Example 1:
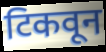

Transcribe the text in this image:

टिकवून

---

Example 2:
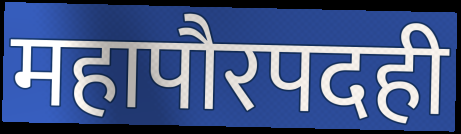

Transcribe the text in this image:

महापौरपदही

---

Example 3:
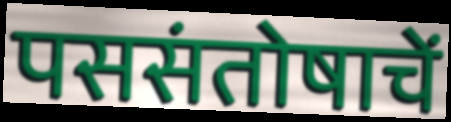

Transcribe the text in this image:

पससंतोषाचें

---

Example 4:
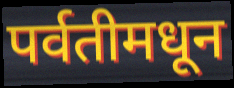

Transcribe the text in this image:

पर्वतीमधून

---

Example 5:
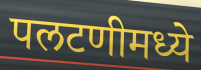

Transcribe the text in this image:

पलटणीमध्ये